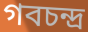
গবচন্দ্র